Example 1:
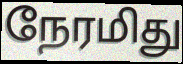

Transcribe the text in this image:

நேரமிது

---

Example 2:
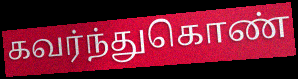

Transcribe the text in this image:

கவர்ந்துகொண்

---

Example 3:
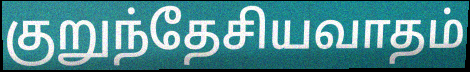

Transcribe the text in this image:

குறுந்தேசியவாதம்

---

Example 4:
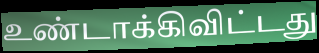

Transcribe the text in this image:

உண்டாக்கிவிட்டது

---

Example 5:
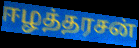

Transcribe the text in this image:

ஈழத்தரசன்